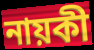
নায়কী